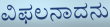
ವಿಫಲನಾದನು